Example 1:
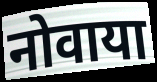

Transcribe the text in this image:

नोवाया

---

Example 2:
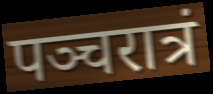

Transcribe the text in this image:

पञ्चरात्रं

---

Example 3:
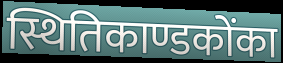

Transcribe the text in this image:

स्थितिकाण्डकोंका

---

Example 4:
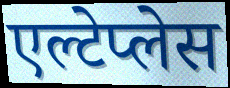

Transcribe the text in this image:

एल्टेप्लेस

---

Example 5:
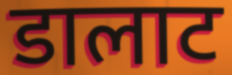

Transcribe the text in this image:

डालाट